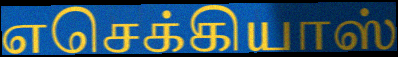
எசெக்கியாஸ்